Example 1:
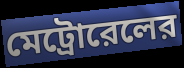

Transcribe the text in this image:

মেট্রোরেলের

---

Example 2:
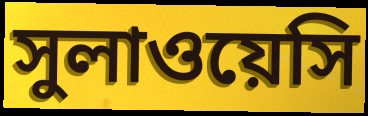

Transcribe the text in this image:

সুলাওয়েসি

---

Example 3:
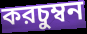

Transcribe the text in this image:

করচুম্বন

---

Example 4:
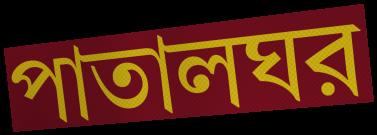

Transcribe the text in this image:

পাতালঘর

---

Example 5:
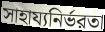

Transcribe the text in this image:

সাহায্যনির্ভরতা